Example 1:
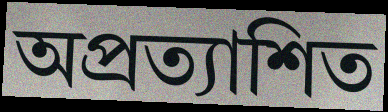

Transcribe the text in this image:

অপ্রত্যাশিত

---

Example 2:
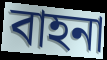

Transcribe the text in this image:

বাহনা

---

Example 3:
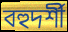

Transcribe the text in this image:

বহুদর্শী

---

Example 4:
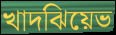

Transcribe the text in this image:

খাদঝিয়েভ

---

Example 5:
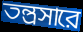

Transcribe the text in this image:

তন্ত্রসারে